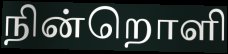
நின்றொளி